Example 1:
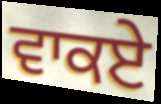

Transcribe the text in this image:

ਵਾਕਏ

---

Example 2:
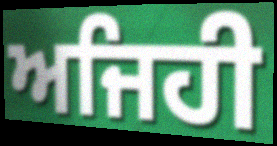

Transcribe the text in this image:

ਅਜਿਹੀ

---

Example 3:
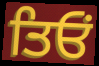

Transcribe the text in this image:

ਤਿਓਂ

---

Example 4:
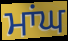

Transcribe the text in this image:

ਮਾਂਘ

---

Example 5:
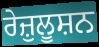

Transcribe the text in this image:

ਰੇਜ਼ੁਲੂਸ਼ਨ